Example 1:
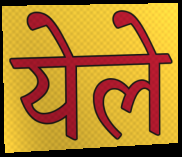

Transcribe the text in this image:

येले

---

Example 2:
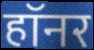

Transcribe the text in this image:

हॉनर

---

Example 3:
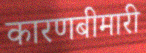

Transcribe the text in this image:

कारणबीमारी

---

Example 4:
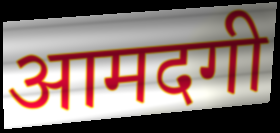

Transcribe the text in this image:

आमदगी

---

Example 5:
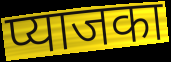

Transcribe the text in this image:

प्याजका